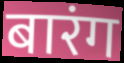
बारंग